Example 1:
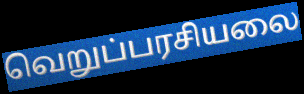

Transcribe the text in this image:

வெறுப்பரசியலை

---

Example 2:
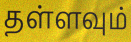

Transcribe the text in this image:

தள்ளவும்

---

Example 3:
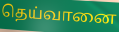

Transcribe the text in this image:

தெய்வானை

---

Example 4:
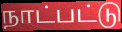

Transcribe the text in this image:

நாட்பட்டு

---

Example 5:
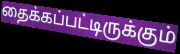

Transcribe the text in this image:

தைக்கப்பட்டிருக்கும்